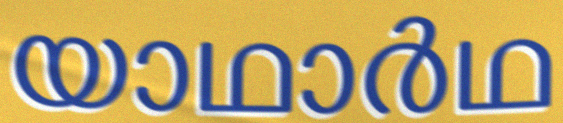
യാഥാർഥ